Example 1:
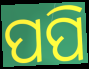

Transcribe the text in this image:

ପପି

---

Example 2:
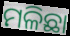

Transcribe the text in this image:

ମଳିଛା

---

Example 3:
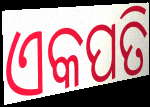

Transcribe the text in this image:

ଏକପତି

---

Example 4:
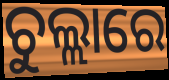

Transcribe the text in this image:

ଚୁଲ୍ଲାରେ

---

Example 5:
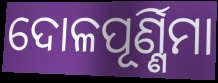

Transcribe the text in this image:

ଦୋଳପୂର୍ଣ୍ଣିମା